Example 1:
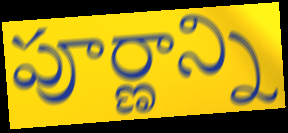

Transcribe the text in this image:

పూర్ణాన్ని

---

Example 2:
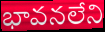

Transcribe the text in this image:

భావనలేని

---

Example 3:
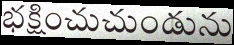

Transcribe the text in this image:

భక్షించుచుండును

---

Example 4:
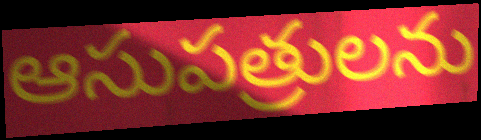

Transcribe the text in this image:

ఆసుపత్రులను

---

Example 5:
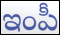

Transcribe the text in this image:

ఇంపీ